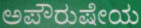
ಅಪೌರುಷೇಯ